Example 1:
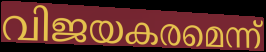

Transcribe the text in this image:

വിജയകരമെന്ന്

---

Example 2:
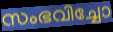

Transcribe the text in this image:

സംഭവിച്ചോ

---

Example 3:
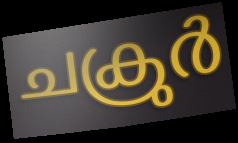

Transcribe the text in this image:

ചക്രുർ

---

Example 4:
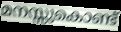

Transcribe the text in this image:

മനസ്സുകൊണ്ട്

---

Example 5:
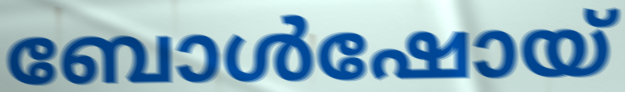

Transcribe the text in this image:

ബോൾഷോയ്